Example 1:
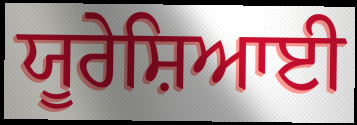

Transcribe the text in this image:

ਯੂਰੇਸ਼ਿਆਈ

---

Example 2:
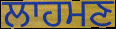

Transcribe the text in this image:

ਲਾਹਮਣ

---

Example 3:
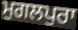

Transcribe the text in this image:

ਮੁਗਲਪੁਰਾ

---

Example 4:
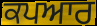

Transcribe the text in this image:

ਕਪਆਰ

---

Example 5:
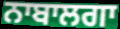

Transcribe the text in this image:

ਨਾਬਾਲਗਾ